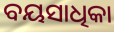
ବୟସାଧିକା